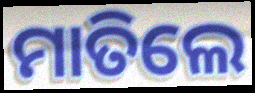
ମାତିଲେ